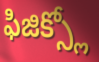
ఫిజిక్స్లో